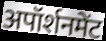
अपॉर्शनमेंट